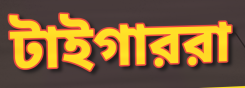
টাইগাররা